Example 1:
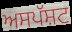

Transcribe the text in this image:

ਅਸਪੱਸ਼ਟ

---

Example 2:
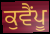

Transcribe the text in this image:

ਕੁਵੈਂਪੂ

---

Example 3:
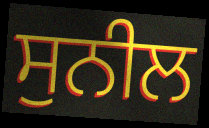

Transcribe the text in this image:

ਸੁਨੀਲ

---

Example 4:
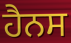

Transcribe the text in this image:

ਹੈਨਸ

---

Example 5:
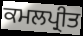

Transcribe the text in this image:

ਕਮਲਪ੍ਰੀਤ